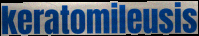
keratomileusis